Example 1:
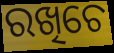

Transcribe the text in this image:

ରଖିଚେ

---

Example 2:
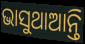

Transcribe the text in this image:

ଭାସୁଥାଆନ୍ତି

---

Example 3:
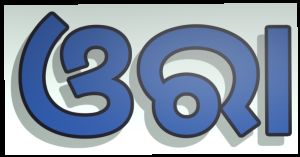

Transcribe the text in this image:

ଓରା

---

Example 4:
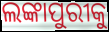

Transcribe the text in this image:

ଲଙ୍କାପୁରୀକୁ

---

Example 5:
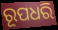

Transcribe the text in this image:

ରୂପଧରି